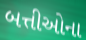
બત્તીઓના